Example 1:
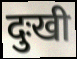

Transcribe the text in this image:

दुःखी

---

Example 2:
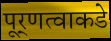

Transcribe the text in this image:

पूर्णत्वाकडे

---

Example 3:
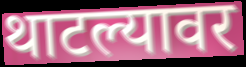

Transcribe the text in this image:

थाटल्यावर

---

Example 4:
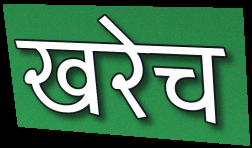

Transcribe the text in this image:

खरेच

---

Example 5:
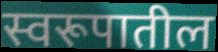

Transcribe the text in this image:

स्वरूपातील